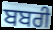
ਬਬਰੀ